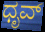
ಧೃವ್